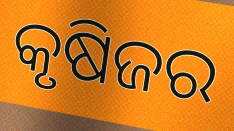
କୃଷିଜର